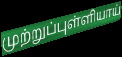
முற்றுப்புள்ளியாய்